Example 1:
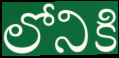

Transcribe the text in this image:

లోనికి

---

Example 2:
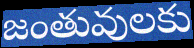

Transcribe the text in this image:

జంతువులకు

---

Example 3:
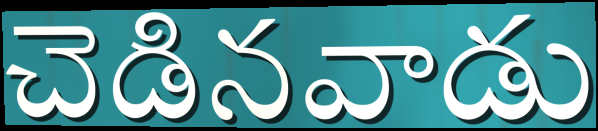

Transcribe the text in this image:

చెడినవాడు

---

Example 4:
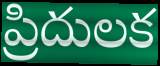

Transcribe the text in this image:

ప్రిదులక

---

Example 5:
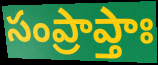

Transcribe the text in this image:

సంప్రాప్తాః